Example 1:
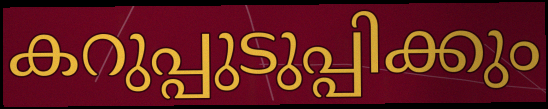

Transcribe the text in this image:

കറുപ്പുടുപ്പിക്കും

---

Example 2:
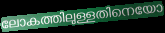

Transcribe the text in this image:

ലോകത്തിലുള്ളതിനെയോ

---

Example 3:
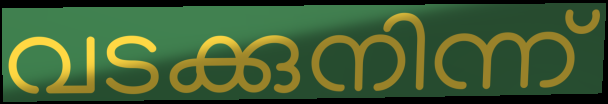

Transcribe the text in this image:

വടക്കുനിന്ന്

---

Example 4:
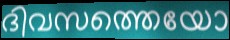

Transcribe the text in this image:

ദിവസത്തെയോ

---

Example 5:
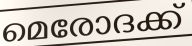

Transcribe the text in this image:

മെരോദക്ക്